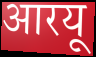
आरयू